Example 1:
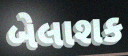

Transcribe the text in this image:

બેલાશક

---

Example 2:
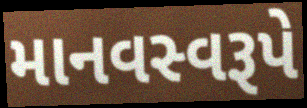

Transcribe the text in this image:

માનવસ્વરૂપે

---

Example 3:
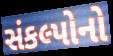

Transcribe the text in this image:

સંકલ્પોનો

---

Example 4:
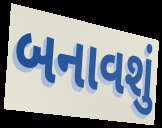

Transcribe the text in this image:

બનાવશું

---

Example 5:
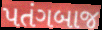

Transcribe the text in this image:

પતંગબાજ